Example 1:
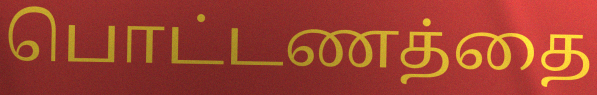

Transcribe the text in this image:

பொட்டணத்தை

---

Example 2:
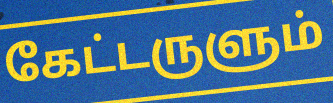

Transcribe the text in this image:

கேட்டருளும்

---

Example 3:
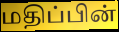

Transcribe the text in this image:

மதிப்பின்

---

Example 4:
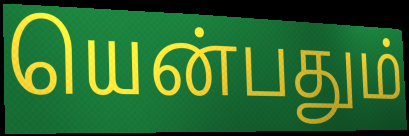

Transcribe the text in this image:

யென்பதும்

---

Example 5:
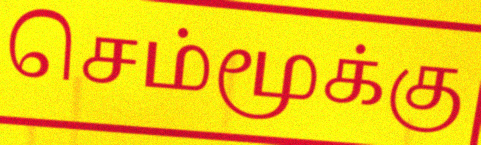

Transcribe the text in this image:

செம்மூக்கு